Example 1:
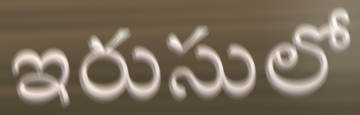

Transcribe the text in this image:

ఇరుసులో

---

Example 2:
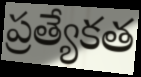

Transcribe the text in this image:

ప్రత్యేకత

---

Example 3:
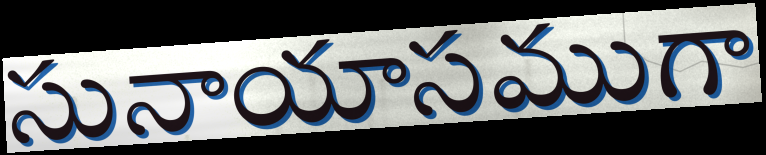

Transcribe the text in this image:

సునాయాసముగా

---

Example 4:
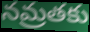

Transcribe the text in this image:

నమ్రతకు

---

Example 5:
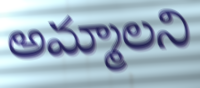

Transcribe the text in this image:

అమ్మాలని